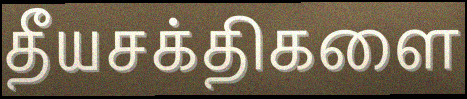
தீயசக்திகளை